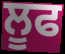
ਲੂਫ